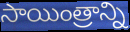
సాయింత్రాన్ని